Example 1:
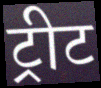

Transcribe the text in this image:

ट्रीट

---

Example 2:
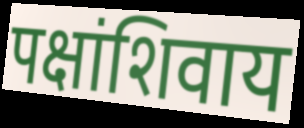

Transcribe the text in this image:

पक्षांशिवाय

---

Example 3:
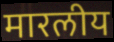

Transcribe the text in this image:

मारलीय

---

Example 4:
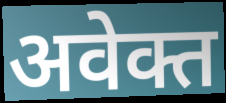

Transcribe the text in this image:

अवेक्त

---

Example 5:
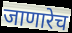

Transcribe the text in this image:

जाणारेच